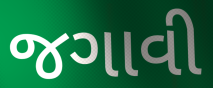
જગાવી